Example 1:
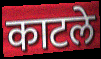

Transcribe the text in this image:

काटले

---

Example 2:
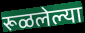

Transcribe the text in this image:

रूळलेल्या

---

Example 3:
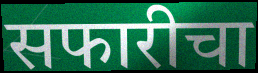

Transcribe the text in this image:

सफारीचा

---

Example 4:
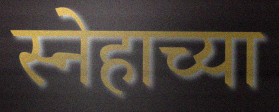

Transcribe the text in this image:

स्नेहाच्या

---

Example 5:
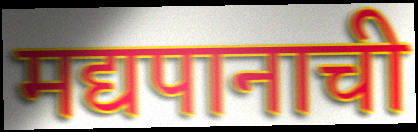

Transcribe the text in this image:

मद्यपानाची